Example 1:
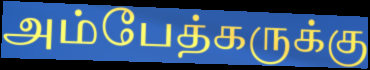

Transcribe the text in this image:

அம்பேத்கருக்கு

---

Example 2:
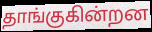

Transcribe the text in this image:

தாங்குகின்றன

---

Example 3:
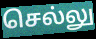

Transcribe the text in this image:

செல்லு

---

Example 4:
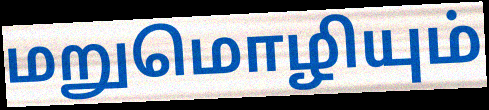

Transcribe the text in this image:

மறுமொழியும்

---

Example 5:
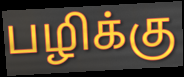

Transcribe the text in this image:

பழிக்கு